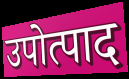
उपोत्पाद